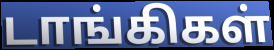
டாங்கிகள்